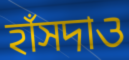
হাঁসদাও